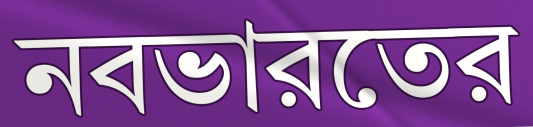
নবভারতের